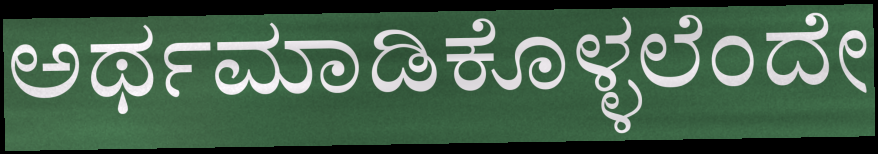
ಅರ್ಥಮಾಡಿಕೊಳ್ಳಲೆಂದೇ